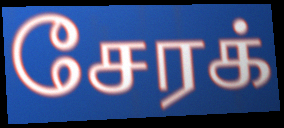
சேரக்